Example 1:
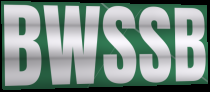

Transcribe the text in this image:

BWSSB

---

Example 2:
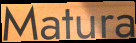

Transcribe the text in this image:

Matura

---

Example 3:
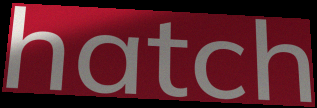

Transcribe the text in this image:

hatch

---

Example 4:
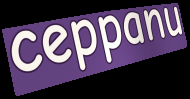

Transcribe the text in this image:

ceppanu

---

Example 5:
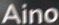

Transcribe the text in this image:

Aino